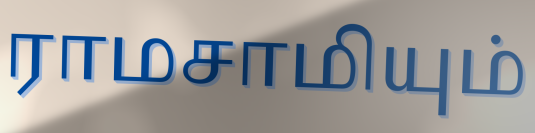
ராமசாமியும்